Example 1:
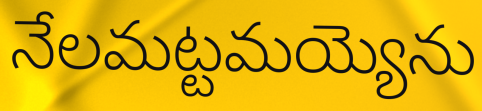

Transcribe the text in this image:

నేలమట్టమయ్యెను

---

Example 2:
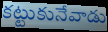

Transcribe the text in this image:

కట్టుకునేవాడు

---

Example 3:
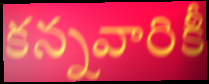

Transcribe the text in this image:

కన్నవారికీ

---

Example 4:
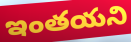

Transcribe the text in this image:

ఇంతయని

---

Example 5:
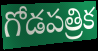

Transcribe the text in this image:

గోడపత్రిక